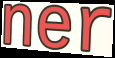
ner